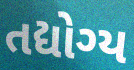
તદ્યોગ્ય